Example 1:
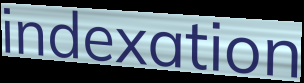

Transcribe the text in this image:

indexation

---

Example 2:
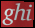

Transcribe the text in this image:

ghi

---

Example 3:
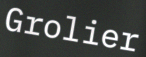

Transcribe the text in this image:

Grolier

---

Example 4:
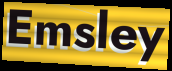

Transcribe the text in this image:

Emsley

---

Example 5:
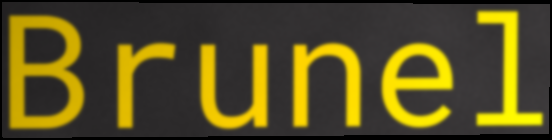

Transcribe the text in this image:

Brunel